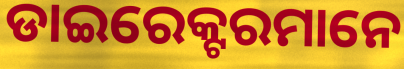
ଡାଇରେକ୍ଟରମାନେ